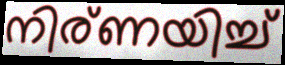
നിര്ണയിച്ച്